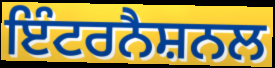
ਇੰਟਰਨੈਸ਼ਨਲ